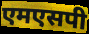
एमएसपी